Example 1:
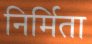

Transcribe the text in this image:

निर्मिता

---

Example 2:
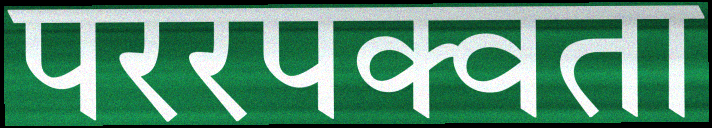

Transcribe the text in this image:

पररपक्वता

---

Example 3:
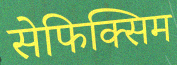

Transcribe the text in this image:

सेफिक्सिम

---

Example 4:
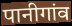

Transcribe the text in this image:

पानीगांव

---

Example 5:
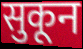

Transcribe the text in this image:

सुकून